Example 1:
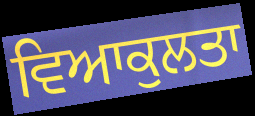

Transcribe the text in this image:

ਵਿਆਕੁਲਤਾ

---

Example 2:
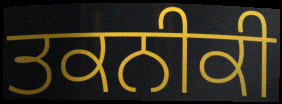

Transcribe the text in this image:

ਤਕਨੀਕੀ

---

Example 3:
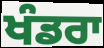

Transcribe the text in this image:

ਖੰਡਰਾ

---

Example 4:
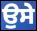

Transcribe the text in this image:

ਉਸੇ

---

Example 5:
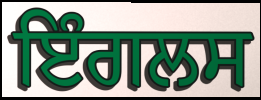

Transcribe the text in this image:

ਇੰਗਲਸ